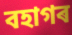
বহাগৰ